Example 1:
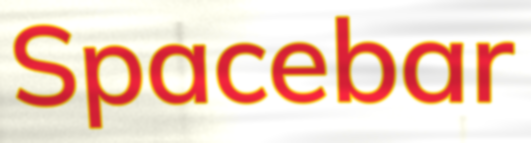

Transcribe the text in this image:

Spacebar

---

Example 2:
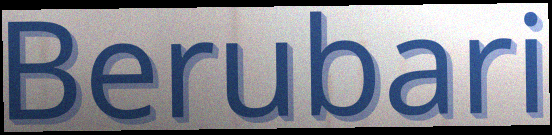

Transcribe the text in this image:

Berubari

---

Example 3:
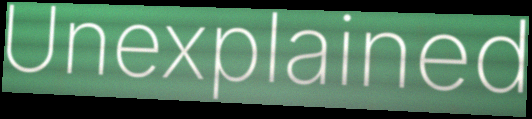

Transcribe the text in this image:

Unexplained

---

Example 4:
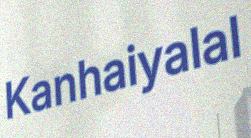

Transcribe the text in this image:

Kanhaiyalal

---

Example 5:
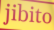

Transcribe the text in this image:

jibito